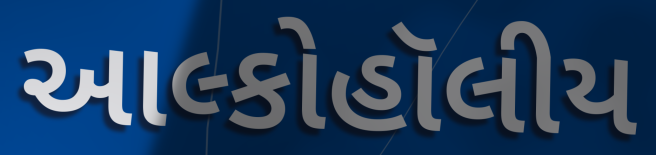
આલ્કોહૉલીય